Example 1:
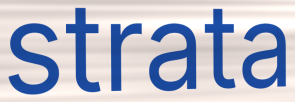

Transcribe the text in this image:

strata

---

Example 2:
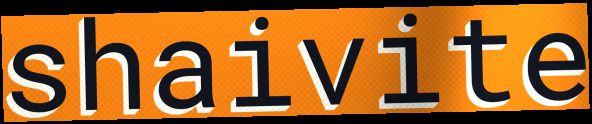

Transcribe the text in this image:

shaivite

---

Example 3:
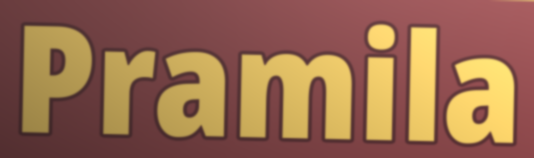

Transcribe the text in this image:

Pramila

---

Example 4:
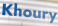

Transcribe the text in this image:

Khoury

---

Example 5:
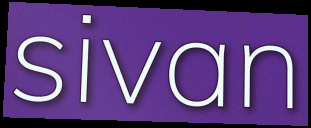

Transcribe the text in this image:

sivan